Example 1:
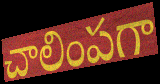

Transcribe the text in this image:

చాలింపగా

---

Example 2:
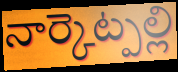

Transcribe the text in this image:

నార్కెట్పల్లి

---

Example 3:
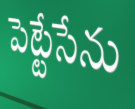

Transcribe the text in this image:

పెట్టేసేను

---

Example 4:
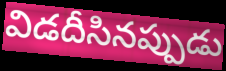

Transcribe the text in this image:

విడదీసినప్పుడు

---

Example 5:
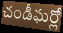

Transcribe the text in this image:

చండీఘర్లో